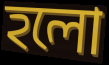
হলো